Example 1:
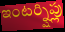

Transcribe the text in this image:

ఇంటర్న్షిప్లు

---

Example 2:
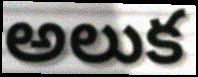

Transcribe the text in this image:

అలుక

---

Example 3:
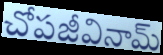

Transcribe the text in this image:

చోపజీవినామ్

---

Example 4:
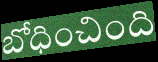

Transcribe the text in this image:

బోధించింది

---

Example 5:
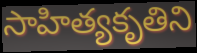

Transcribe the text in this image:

సాహిత్యకృతిని